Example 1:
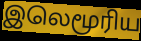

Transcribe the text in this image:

இலெமூரிய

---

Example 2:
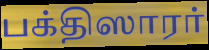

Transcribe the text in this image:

பக்திஸாரர்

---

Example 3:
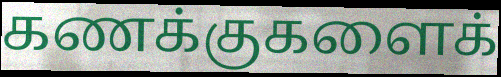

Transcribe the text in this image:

கணக்குகளைக்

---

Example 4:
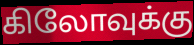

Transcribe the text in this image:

கிலோவுக்கு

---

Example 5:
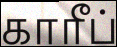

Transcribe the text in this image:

காரீப்